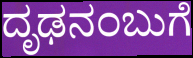
ದೃಢನಂಬುಗೆ